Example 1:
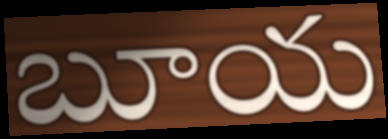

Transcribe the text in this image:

బూయ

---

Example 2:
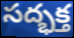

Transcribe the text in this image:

సద్భక్త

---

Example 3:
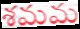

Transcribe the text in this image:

శమమ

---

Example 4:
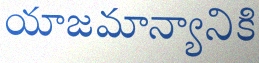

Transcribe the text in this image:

యాజమాన్యానికి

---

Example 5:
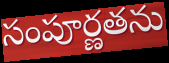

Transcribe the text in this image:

సంపూర్ణతను